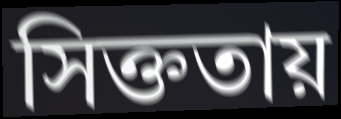
সিক্ততায়